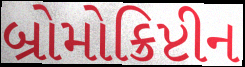
બ્રોમોક્રિપ્ટીન